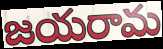
జయరామ